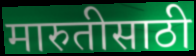
मारुतीसाठी